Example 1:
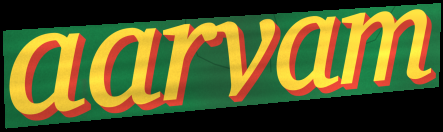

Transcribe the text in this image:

aarvam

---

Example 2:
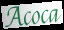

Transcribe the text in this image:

Acoca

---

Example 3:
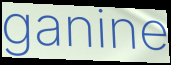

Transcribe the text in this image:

ganine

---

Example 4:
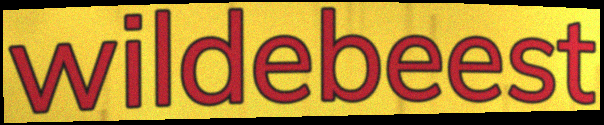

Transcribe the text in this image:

wildebeest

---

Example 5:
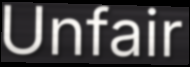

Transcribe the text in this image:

Unfair